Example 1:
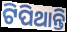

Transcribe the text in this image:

ଟିପିଥାନ୍ତି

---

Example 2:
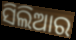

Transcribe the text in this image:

ସିଲିଆର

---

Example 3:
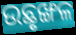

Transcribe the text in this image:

ଉଛୃଙ୍ଖଳ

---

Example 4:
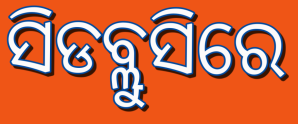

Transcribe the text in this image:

ସିଡବ୍ଲୁସିରେ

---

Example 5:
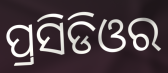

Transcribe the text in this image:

ପ୍ରସିଡିଓର